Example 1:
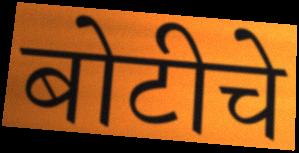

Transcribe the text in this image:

बोटीचे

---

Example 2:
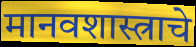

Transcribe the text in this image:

मानवशास्त्राचे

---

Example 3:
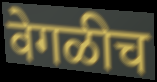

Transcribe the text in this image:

वेगळीच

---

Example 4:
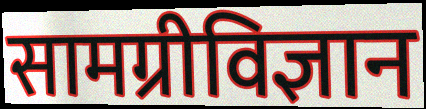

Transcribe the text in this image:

सामग्रीविज्ञान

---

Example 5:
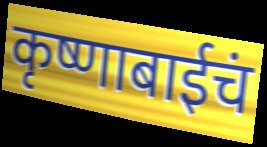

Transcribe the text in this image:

कृष्णाबाईचं